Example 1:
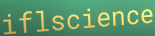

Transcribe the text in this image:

iflscience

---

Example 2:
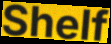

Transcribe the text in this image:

Shelf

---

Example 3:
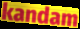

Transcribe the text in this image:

kandam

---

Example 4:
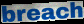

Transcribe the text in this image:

breach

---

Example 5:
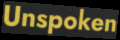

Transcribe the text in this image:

Unspoken